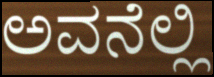
ಅವನೆಲ್ಲಿ